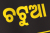
ଚଟୁଆ